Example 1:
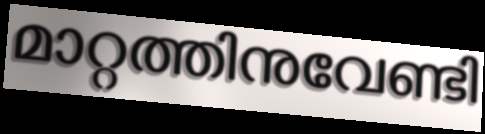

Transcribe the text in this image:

മാറ്റത്തിനുവേണ്ടി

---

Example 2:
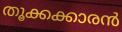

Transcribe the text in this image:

തൂക്കക്കാരൻ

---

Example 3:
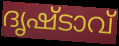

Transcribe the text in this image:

ദൃഷ്ടാവ്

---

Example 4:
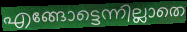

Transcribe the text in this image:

എങ്ങോട്ടെന്നില്ലാതെ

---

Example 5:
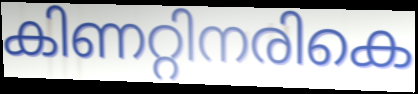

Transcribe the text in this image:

കിണറ്റിനരികെ